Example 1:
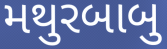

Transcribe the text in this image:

મથુરબાબુ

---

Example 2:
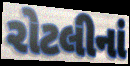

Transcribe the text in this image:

રોટલીનાં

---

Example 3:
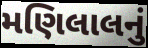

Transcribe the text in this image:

મણિલાલનું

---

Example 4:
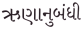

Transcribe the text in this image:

ઋણાનુબંધી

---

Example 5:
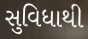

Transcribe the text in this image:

સુવિધાથી